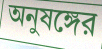
অনুষঙ্গের